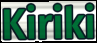
Kiriki